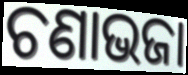
ଚଣାଭଜା